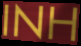
INH